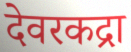
देवरकद्रा